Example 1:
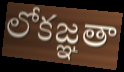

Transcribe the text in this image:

లోకజ్ఞతా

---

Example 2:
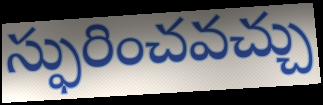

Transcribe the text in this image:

స్ఫురించవచ్చు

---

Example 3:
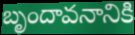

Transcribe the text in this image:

బృందావనానికి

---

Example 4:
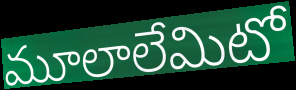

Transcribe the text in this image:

మూలాలేమిటో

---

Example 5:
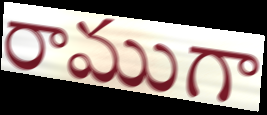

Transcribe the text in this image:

రాముగా